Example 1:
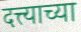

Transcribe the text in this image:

दत्त्याच्या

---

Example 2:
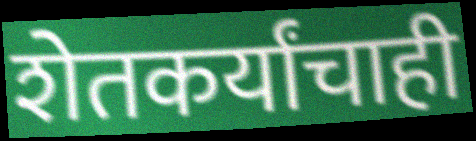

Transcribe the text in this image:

शेतकर्यांचाही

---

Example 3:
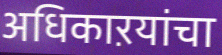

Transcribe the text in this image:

अधिकाऱयांचा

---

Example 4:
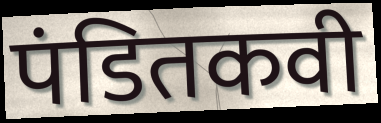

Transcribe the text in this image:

पंडितकवी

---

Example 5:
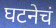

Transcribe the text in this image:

घटनेचं